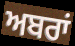
ਅਬਰਾਂ